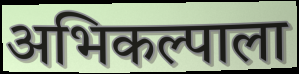
अभिकल्पाला